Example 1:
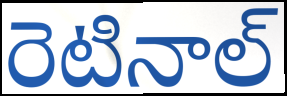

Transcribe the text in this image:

రెటినాల్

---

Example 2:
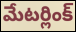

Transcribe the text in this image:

మేటర్లింక్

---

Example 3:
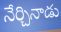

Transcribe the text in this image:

నేర్చినాడు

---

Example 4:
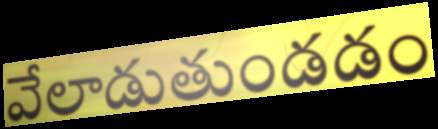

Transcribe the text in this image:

వేలాడుతుండడం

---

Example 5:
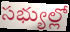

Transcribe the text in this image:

సభ్యుల్లో